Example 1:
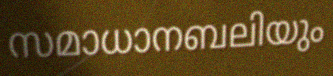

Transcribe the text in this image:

സമാധാനബലിയും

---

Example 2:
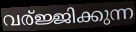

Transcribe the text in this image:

വര്ജ്ജിക്കുന്ന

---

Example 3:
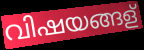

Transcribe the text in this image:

വിഷയങ്ങള്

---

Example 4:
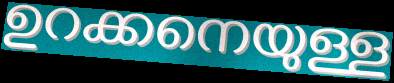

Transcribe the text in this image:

ഉറക്കനെയുള്ള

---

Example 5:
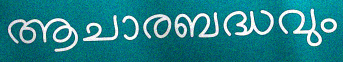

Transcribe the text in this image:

ആചാരബദ്ധവും